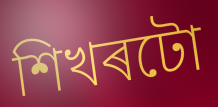
শিখৰটো